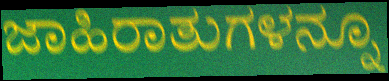
ಜಾಹಿರಾತುಗಳನ್ನೂ